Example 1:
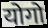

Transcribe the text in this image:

योगो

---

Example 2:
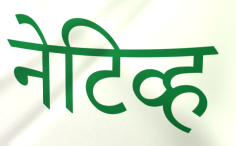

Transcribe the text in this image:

नेटिव्ह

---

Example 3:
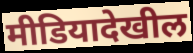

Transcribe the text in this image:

मीडियादेखील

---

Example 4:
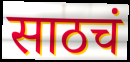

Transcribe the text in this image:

साठचं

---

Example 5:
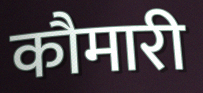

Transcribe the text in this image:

कौमारी